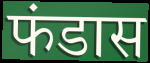
फंडास